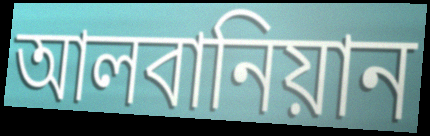
আলবানিয়ান